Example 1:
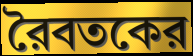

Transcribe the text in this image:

রৈবতকের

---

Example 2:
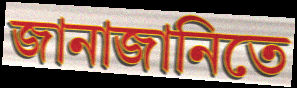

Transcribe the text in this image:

জানাজানিতে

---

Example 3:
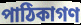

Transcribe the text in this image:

পাঠিকাগণ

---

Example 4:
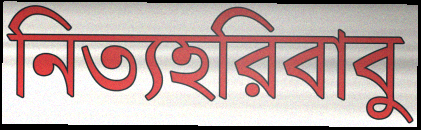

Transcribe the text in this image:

নিত্যহরিবাবু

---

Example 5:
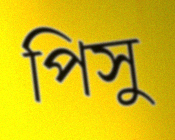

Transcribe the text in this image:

পিসু